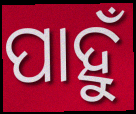
ପାହୁଁ